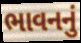
ભાવનનું